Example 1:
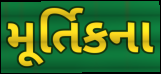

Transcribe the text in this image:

મૂર્તિકના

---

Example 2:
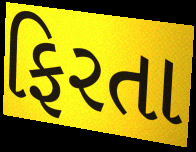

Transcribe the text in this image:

ફિરતા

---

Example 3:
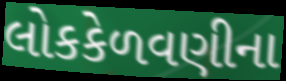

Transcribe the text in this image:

લોકકેળવણીના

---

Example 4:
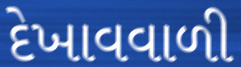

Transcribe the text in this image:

દેખાવવાળી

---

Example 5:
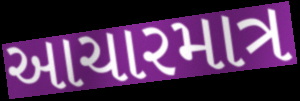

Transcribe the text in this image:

આચારમાત્ર